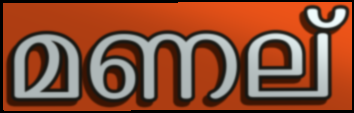
മണല്